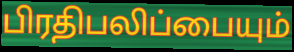
பிரதிபலிப்பையும்